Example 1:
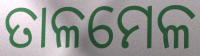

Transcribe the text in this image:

ତାଳମେଳ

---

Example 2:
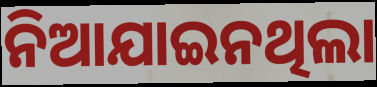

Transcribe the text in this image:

ନିଆଯାଇନଥିଲା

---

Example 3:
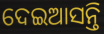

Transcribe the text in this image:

ଦେଇଆସନ୍ତି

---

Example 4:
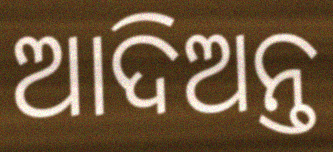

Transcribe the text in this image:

ଆଦିଅନ୍ତ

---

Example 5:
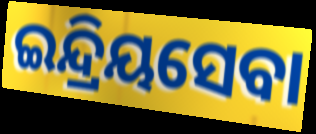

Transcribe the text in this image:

ଇନ୍ଦ୍ରିୟସେବା